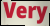
Very